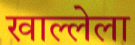
खाल्लेला